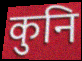
कुनि